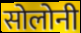
सोलोनी